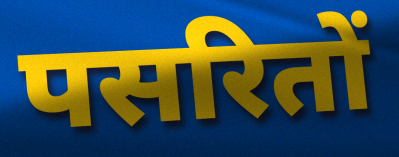
पसरितों